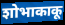
शोभाकाकू